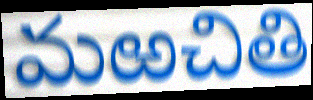
మఱచితి